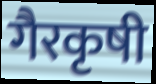
गैरकृषी